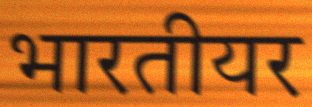
भारतीयर